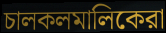
চালকলমালিকেরা